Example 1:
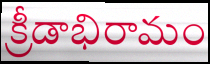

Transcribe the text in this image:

క్రీడాభిరామం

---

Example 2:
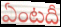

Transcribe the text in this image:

ఏంటదీ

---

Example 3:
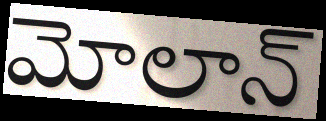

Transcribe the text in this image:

మోలాన్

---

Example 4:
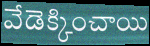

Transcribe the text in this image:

వేడెక్కించాయి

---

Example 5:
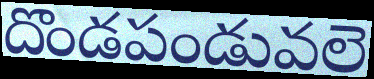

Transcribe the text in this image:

దొండపండువలె